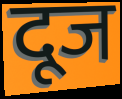
दूज